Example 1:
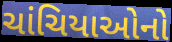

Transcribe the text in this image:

ચાંચિયાઓનો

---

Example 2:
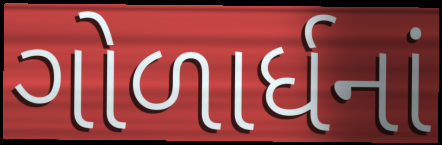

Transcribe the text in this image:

ગોળાર્ધનાં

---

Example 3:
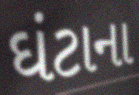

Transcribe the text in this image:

ઘંટાના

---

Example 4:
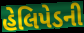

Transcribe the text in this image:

હેલિપેડની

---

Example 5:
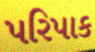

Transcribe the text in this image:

પરિપાક